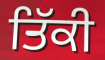
ਤਿੱਕੀ